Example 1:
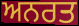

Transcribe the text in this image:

ਅਨਰਤ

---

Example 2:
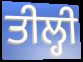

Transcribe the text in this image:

ਤੀਲ੍ਹੀ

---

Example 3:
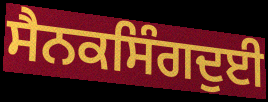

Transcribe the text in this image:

ਸੈਨਕਸਿੰਗਦੁਈ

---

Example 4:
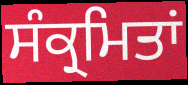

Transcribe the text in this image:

ਸੰਕ੍ਰਮਿਤਾਂ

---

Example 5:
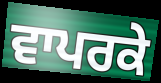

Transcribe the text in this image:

ਵਾਪਰਕੇ